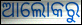
ଆଲୋକରୁ